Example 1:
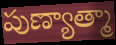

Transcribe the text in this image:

పుణ్యాత్మా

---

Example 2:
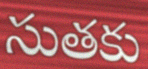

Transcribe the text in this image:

సుతకు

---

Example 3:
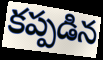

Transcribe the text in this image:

కప్పడిన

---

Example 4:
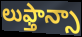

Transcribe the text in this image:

లుఫ్తాన్సా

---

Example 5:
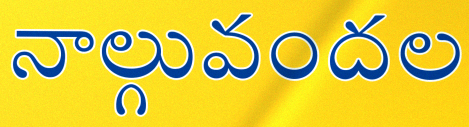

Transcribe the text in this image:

నాల్గువందల